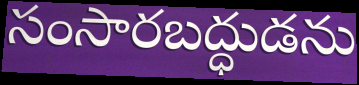
సంసారబద్ధుడను